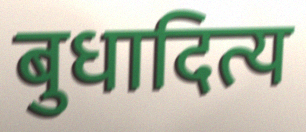
बुधादित्य